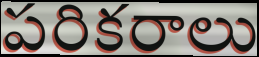
పరికరాలు